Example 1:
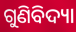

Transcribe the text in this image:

ଗୁଣିବିଦ୍ୟା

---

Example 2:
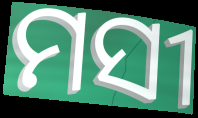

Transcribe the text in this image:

ମସୀ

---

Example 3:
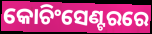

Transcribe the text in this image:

କୋଚିଂସେଣ୍ଟରରେ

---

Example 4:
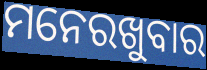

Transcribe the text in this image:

ମନେରଖୁବାର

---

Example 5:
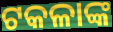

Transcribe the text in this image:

ଟକଳାଙ୍କ